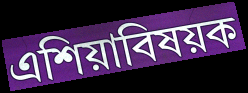
এশিয়াবিষয়ক